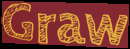
Graw